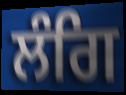
ਲੰਗਿ